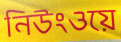
নিউংওয়ে